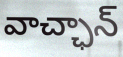
వాచ్ఛాన్